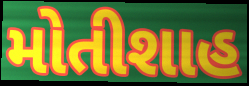
મોતીશાહ